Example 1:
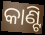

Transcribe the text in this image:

କାଣ୍ଟି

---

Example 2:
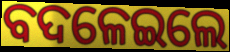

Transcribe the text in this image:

ବଦଳେଇଲେ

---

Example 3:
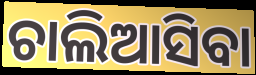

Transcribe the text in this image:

ଚାଲିଆସିବା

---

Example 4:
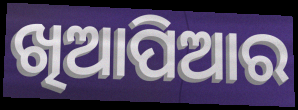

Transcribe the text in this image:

ଖିଆପିଆର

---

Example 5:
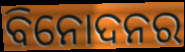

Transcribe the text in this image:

ବିନୋଦନର